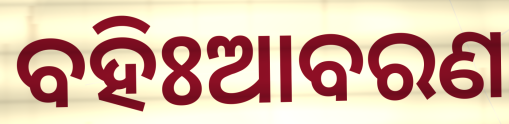
ବହିଃଆବରଣ